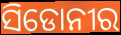
ସିଡୋନୀର